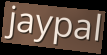
jaypal